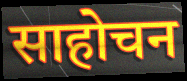
साहोचन